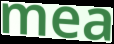
mea